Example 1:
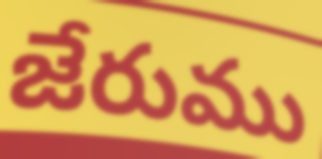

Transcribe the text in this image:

జేరుము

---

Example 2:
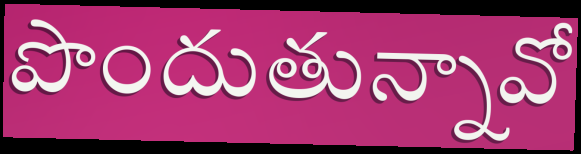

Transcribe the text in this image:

పొందుతున్నావో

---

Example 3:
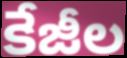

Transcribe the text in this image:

కేజీల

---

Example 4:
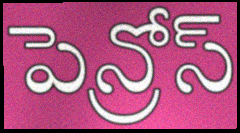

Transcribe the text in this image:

పెన్రోస్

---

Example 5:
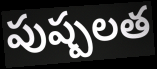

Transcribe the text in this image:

పుష్పలత